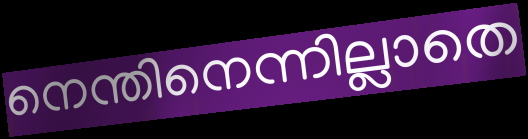
നെന്തിനെന്നില്ലാതെ